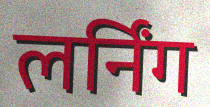
लर्निंग